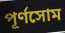
পূর্ণসোম